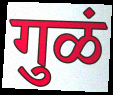
गुळं